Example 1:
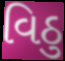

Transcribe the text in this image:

વિઠુ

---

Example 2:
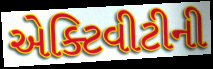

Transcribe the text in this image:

એક્ટિવીટીની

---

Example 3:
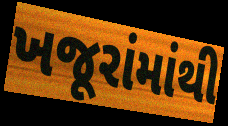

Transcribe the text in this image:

ખજૂરાંમાંથી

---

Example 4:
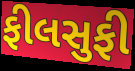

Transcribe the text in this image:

ફીલસુફી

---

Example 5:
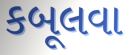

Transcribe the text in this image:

કબૂલવા